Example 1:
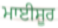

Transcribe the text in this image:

ਮਾਈਸੂਰ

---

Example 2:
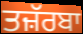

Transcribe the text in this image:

ਤਜ਼ੱਰਬਾ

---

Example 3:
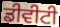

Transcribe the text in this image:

ਡੀਵੀਟੀ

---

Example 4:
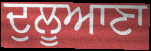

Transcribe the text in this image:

ਦੁਲੂਆਣਾ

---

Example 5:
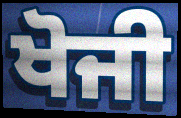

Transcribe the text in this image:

ਖੋਜੀ